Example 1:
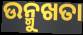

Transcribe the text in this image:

ଉନ୍ମୁଖତା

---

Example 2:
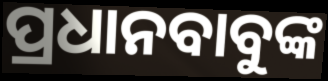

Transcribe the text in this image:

ପ୍ରଧାନବାବୁଙ୍କ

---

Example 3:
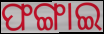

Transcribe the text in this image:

ଫଙ୍ଗାଇ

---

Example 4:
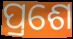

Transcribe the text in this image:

ପ୍ରଶେ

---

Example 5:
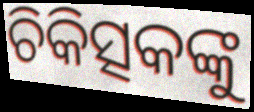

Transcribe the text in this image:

ଚିକିତ୍ସକଙ୍କୁ